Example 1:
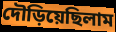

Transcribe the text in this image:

দৌড়িয়েছিলাম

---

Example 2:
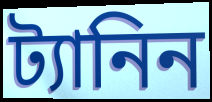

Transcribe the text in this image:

ট্যানিন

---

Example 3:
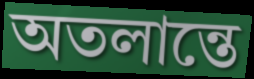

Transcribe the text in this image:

অতলান্তে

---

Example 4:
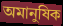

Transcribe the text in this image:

অমানুষিক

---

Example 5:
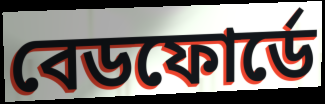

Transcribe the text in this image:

বেডফোর্ডে